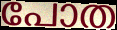
പോത